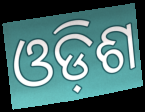
ଓଡ଼ିଶ